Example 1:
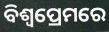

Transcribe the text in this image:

ବିଶ୍ୱପ୍ରେମରେ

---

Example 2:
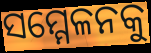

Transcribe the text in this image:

ସମ୍ମେଳନକୁ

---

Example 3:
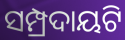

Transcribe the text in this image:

ସମ୍ପ୍ରଦାୟଟି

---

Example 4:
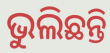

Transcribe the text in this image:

ଭୁଲିଛନ୍ତି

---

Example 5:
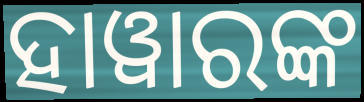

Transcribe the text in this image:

ହାୱାରଙ୍କ